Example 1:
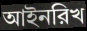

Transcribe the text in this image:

আইনরিখ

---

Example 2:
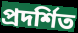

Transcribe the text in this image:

প্রদর্শিত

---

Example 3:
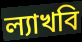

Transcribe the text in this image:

ল্যাখবি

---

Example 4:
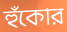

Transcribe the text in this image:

হুঁকোর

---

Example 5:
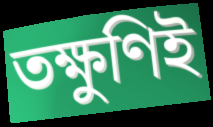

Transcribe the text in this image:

তক্ষুণিই